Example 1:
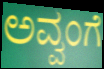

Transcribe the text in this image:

ಅವ್ವಂಗೆ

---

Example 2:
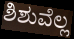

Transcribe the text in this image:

ಶಿಶುವೆಲ್ಲ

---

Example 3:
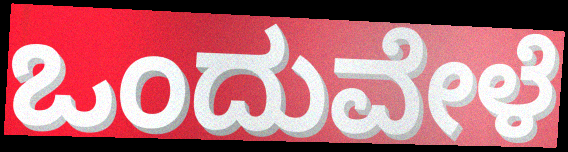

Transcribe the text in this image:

ಒಂದುವೇಳೆ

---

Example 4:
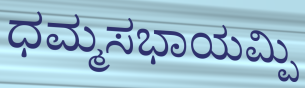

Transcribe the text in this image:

ಧಮ್ಮಸಭಾಯಮ್ಪಿ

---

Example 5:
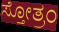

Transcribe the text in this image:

ಸ್ತೋತ್ರಂ